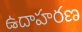
ఉదాహరణ